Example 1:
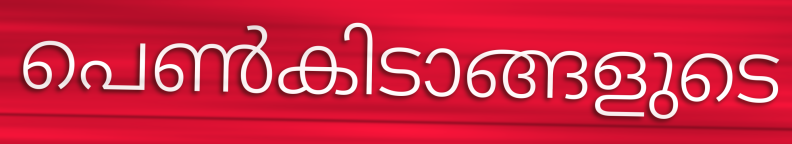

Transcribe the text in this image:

പെൺകിടാങ്ങളുടെ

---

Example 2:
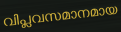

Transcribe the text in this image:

വിപ്ലവസമാനമായ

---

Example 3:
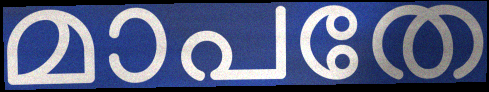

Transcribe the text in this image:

മാപതേ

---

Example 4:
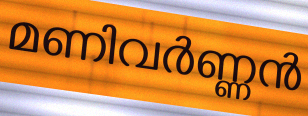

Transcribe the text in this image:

മണിവർണ്ണൻ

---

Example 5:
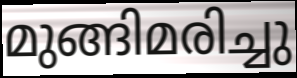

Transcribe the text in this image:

മുങ്ങിമരിച്ചു